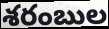
శరంబుల